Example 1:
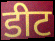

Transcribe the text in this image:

डीट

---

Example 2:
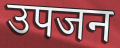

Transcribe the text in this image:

उपजन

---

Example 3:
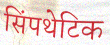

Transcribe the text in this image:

सिंपथेटिक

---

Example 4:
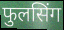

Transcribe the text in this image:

फुलसिंग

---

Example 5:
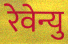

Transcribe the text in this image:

रेवेन्यु